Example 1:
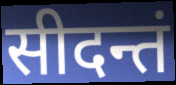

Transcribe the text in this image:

सीदन्तं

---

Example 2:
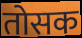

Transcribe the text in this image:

तोसक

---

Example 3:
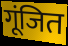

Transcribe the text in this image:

गूंजित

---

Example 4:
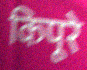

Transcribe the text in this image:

किपूरे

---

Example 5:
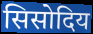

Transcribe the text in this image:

सिसोदिय